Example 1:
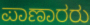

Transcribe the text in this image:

ಪಾಣಾರರು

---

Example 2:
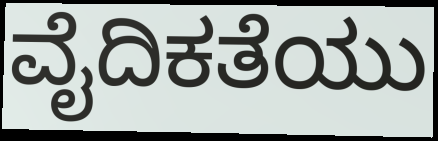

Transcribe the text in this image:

ವೈದಿಕತೆಯು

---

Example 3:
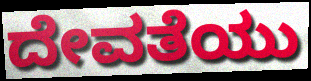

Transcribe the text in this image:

ದೇವತೆಯು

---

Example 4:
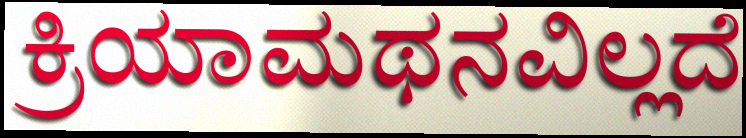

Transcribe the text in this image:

ಕ್ರಿಯಾಮಥನವಿಲ್ಲದೆ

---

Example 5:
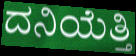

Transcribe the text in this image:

ದನಿಯೆತ್ತಿ